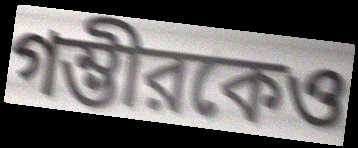
গম্ভীরকেও